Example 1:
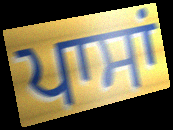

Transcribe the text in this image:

ਪਾਸਾਂ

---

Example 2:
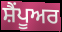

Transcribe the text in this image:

ਸ਼ੈਂਪੂਅਰ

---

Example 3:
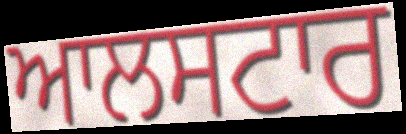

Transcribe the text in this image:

ਆਲਸਟਾਰ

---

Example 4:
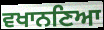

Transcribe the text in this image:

ਵਖਾਨਣਿਆ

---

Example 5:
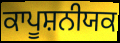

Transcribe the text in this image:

ਕਾਪੂਸ਼ਨੀਯਕ